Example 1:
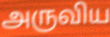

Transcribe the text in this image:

அருவிய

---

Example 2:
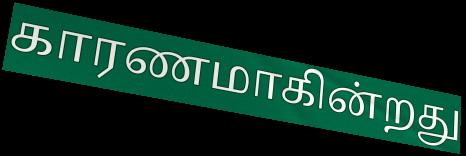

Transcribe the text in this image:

காரணமாகின்றது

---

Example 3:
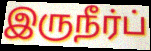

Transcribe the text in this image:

இருநீர்ப்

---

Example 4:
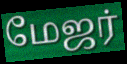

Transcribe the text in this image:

மேஜர்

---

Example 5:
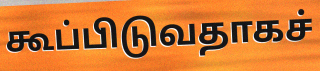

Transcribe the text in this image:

கூப்பிடுவதாகச்